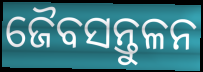
ଜୈବସନ୍ତୁଳନ